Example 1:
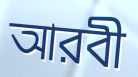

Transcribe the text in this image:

আরবী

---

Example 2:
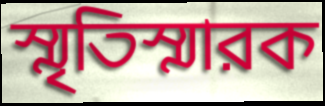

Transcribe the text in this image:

স্মৃতিস্মারক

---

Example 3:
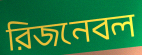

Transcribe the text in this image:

রিজনেবল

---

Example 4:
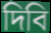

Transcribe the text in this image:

দিবি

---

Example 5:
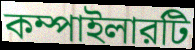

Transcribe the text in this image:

কম্পাইলারটি